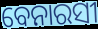
ବେନାରସୀ